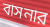
বাসনার